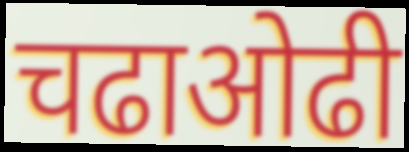
चढाओढी